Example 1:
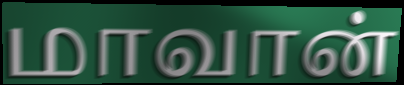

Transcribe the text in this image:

மாவான்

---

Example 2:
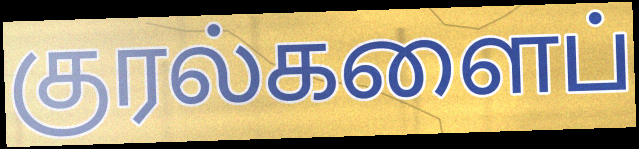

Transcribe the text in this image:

குரல்களைப்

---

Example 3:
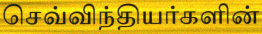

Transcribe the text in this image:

செவ்விந்தியர்களின்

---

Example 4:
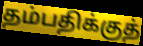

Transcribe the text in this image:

தம்பதிக்குத்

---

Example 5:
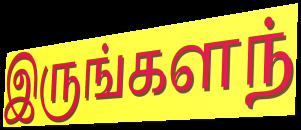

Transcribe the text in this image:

இருங்களந்